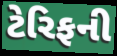
ટેરિફની